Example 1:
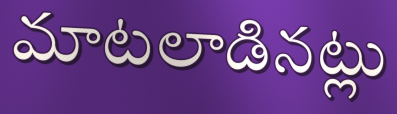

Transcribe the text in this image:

మాటలాడినట్లు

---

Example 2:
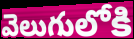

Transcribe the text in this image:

వెలుగులోకి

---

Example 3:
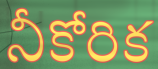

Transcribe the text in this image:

నీకోరిక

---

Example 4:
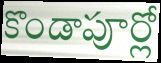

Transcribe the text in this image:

కొండాపూర్లో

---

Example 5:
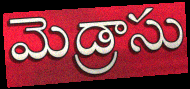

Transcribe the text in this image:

మెడ్రాసు